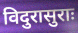
विदुरासुराः